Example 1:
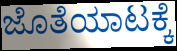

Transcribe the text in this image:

ಜೊತೆಯಾಟಕ್ಕೆ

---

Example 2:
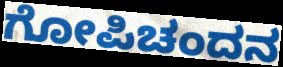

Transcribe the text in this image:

ಗೋಪಿಚಂದನ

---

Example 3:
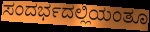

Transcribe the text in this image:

ಸಂದರ್ಭದಲ್ಲಿಯಂತೂ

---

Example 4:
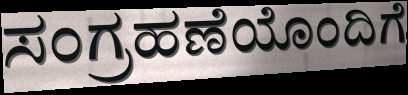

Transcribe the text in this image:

ಸಂಗ್ರಹಣೆಯೊಂದಿಗೆ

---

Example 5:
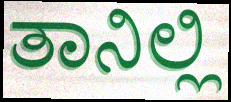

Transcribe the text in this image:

ತಾನಿಲ್ಲಿ